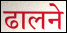
ढालने